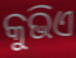
କୁଭିଏ